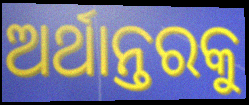
ଅର୍ଥାନ୍ତରକୁ